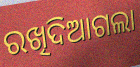
ରଖିଦିଆଗଲା